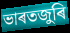
ভাৰতজুৰি